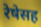
रेषेसह